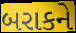
બરાકને